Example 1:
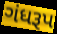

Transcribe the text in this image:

ગંધરૂપ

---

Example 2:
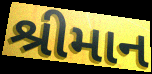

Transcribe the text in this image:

શ્રીમાન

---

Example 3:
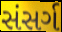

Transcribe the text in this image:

સંસર્ગ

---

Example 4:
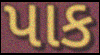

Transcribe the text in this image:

પાક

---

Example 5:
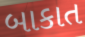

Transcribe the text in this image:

બાકાત